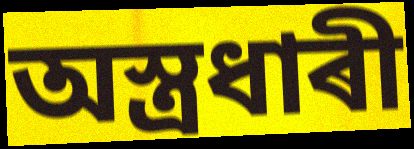
অস্ত্ৰধাৰী